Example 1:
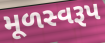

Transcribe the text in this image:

મૂળસ્વરૂપ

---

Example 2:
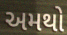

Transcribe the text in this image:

અમથો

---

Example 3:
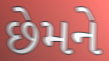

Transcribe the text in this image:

છેમને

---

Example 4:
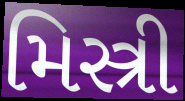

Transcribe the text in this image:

મિસ્ત્રી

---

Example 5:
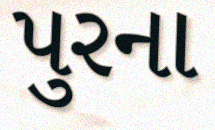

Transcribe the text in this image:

પુરના